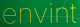
envint